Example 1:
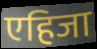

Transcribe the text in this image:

एहिजा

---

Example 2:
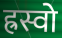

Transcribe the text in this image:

ह्रस्वो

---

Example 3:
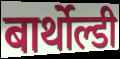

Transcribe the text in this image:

बार्थोल्डी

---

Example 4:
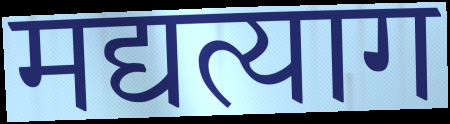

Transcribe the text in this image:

मद्यत्याग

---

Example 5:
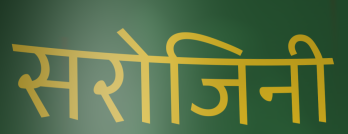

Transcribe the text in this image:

सरोजिनी